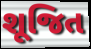
શૂજિત